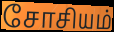
சோசியம்